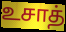
உசாத்